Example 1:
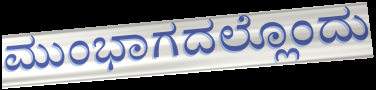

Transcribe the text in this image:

ಮುಂಭಾಗದಲ್ಲೊಂದು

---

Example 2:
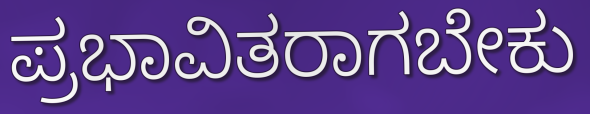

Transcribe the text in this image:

ಪ್ರಭಾವಿತರಾಗಬೇಕು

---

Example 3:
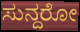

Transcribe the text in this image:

ಸುನ್ದರೋ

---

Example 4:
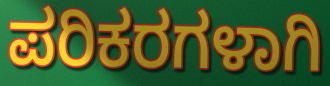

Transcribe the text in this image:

ಪರಿಕರಗಳಾಗಿ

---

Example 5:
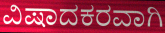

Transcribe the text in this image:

ವಿಷಾದಕರವಾಗಿ